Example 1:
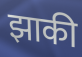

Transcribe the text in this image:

झाकी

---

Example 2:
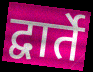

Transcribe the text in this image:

द्वार्ते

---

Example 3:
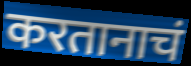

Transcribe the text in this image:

करतानाचं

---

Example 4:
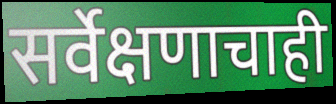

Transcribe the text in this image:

सर्वेक्षणाचाही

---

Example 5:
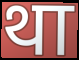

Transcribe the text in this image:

था